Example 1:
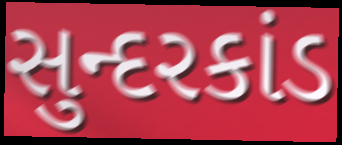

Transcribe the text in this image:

સુન્દરકાંડ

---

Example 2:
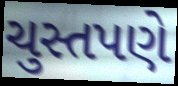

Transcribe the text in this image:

ચુસ્તપણે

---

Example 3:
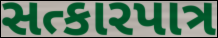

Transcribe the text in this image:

સત્કારપાત્ર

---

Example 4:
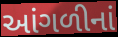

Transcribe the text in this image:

આંગળીનાં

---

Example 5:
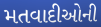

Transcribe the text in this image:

મતવાદીઓની